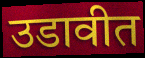
उडावीत